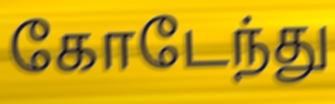
கோடேந்து